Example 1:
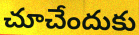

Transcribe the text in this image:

చూచేందుకు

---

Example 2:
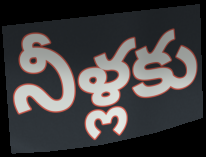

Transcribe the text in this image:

నీళ్లకు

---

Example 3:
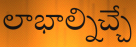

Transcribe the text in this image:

లాభాల్నిచ్చే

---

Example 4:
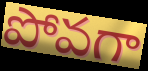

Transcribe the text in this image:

పోవగా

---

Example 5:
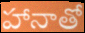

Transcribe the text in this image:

హానాతో